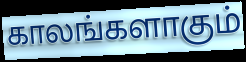
காலங்களாகும்